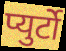
प्युर्टो